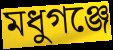
মধুগঞ্জে